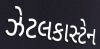
ઝેટલકાસ્ટેન